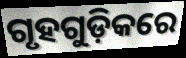
ଗୃହଗୁଡ଼ିକରେ